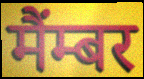
मैंम्बर